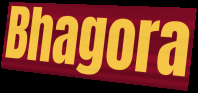
Bhagora